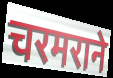
चरमराने